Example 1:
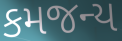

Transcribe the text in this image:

કમજન્ય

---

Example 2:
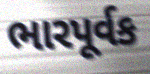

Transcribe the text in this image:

ભારપૂર્વક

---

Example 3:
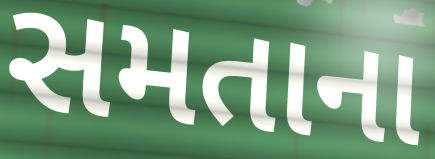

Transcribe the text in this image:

સમતાના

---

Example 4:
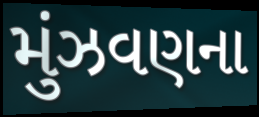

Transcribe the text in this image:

મુંઝવણના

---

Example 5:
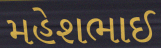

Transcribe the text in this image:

મહેશભાઈ